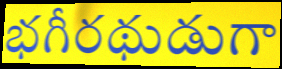
భగీరథుడుగా